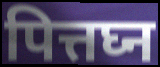
पित्तघ्न